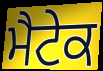
ਮੈਟੇਕ